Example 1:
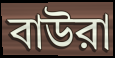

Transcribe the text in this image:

বাউরা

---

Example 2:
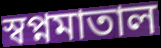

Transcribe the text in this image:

স্বপ্নমাতাল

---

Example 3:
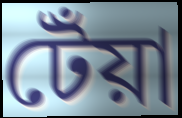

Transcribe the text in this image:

টেঁয়া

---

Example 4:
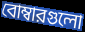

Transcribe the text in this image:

বোম্বারগুলো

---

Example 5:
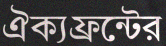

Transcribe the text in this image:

ঐক্যফ্রন্টের